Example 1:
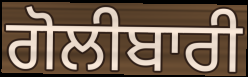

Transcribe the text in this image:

ਗੋਲੀਬਾਰੀ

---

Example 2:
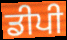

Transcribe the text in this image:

ਡੀਪੀ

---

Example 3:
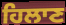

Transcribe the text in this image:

ਹਿਲਾਣ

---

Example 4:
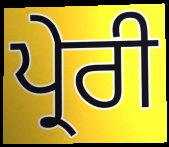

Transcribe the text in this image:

ਪ੍ਰੇਰੀ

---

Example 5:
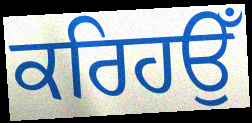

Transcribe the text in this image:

ਕਰਿਹਉਁ